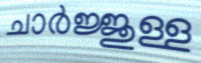
ചാർജ്ജുള്ള